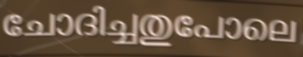
ചോദിച്ചതുപോലെ